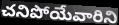
చనిపోయేవారిని